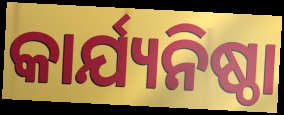
କାର୍ଯ୍ୟନିଷ୍ଠା